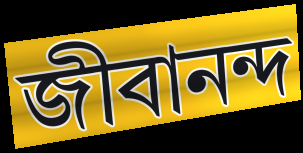
জীবানন্দ